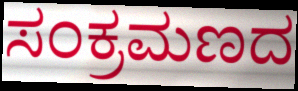
ಸಂಕ್ರಮಣದ